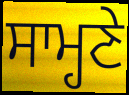
ਸਾਮ੍ਹਣੇ